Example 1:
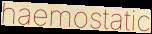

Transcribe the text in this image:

haemostatic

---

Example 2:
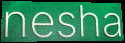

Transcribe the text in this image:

nesha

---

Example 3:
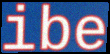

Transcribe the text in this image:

ibe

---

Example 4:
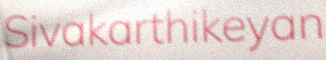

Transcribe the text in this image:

Sivakarthikeyan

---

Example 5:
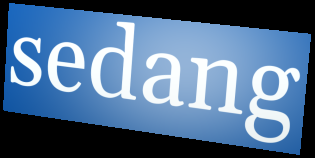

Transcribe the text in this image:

sedang